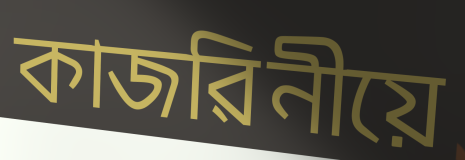
কাজৱিনীয়ে